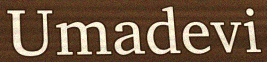
Umadevi